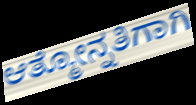
ಆತ್ಮೋನ್ನತಿಗಾಗಿ